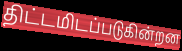
திட்டமிடப்படுகின்றன